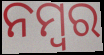
ନମ୍ବର